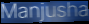
Manjusha